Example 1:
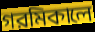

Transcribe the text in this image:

গরমিকালে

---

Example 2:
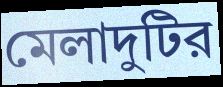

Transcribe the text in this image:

মেলাদুটির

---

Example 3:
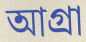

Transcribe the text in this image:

আগ্রা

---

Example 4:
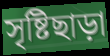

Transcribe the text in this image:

সৃষ্টিছাড়া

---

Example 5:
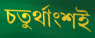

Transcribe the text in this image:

চতুর্থাংশই